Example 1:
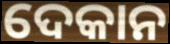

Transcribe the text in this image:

ଦେକାନ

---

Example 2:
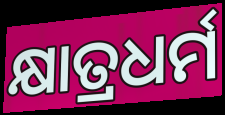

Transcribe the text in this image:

କ୍ଷାତ୍ରଧର୍ମ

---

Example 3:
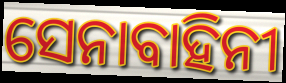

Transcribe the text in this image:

ସେନାବାହିନୀ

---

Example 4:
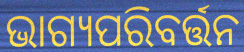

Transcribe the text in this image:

ଭାଗ୍ୟପରିବର୍ତ୍ତନ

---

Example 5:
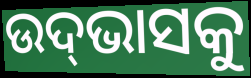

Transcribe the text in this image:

ଉଦ୍‌ଭାସକୁ